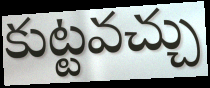
కుట్టవచ్చు